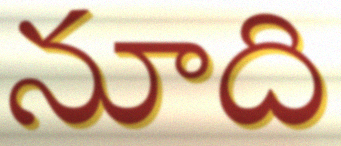
నూది